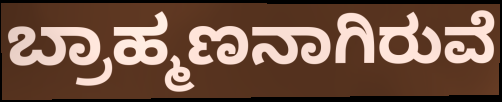
ಬ್ರಾಹ್ಮಣನಾಗಿರುವೆ